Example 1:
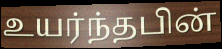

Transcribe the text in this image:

உயர்ந்தபின்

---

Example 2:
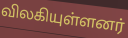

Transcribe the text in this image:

விலகியுள்ளனர்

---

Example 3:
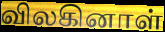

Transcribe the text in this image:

விலகினாள்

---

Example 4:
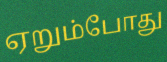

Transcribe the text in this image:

ஏறும்போது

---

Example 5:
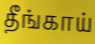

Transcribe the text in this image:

தீங்காய்